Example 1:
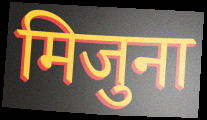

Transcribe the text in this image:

मिजुना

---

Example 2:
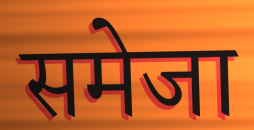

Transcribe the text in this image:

समेजा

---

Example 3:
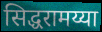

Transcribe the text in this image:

सिद्धरामय्या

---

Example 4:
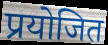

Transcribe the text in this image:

प्रयोजित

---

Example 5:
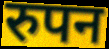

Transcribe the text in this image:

रुपन